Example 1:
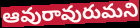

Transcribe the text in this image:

ఆవురావురుమని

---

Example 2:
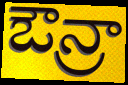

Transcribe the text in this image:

ఔన్రా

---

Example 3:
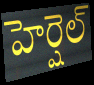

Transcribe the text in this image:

హెర్షెల్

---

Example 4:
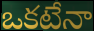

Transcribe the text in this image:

ఒకటేనా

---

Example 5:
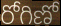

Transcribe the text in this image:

రోగిణో